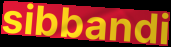
sibbandi